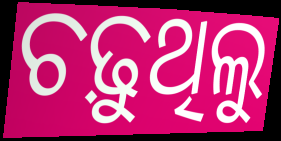
ଚଢ଼ୁଥିଲୁ